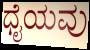
ಧೈಯವು